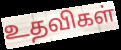
உதவிகள்